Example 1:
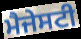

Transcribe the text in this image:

ਮੈਜੇਸਟੀ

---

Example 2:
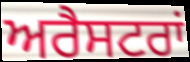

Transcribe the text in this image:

ਅਰੈਸਟਰਾਂ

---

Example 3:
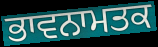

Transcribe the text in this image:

ਭਾਵਨਾਮਤਕ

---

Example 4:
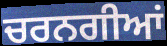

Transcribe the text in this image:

ਚਰਨਗੀਆਂ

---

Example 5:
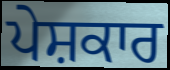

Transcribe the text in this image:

ਪੇਸ਼ਕਾਰ